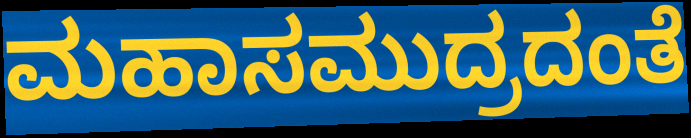
ಮಹಾಸಮುದ್ರದಂತೆ